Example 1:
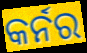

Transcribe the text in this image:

କର୍ନର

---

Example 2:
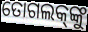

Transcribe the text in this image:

ତୋଗଲକ୍‌ଙ୍କୁ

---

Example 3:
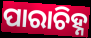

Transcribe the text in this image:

ପାରାଚିହ୍ନ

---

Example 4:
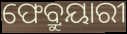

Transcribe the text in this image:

ଫେବ୍ରୁୟାରୀ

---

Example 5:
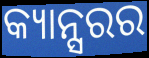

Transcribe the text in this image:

କ୍ୟାନ୍ସରର